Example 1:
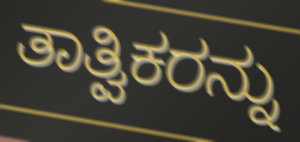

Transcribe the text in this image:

ತಾತ್ವಿಕರನ್ನು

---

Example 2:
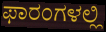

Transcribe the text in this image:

ಫಾರಂಗಳಲ್ಲಿ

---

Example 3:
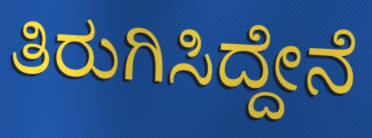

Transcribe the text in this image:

ತಿರುಗಿಸಿದ್ದೇನೆ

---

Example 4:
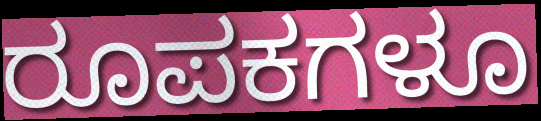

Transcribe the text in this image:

ರೂಪಕಗಳೂ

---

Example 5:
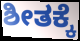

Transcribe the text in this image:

ಶೀತಕ್ಕೆ